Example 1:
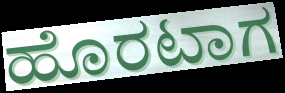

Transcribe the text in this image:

ಹೊರಟಾಗ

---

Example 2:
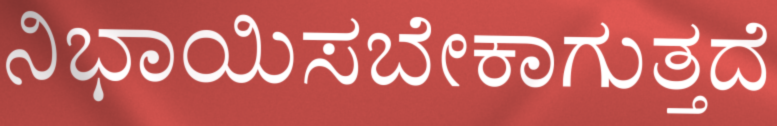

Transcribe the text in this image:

ನಿಭಾಯಿಸಬೇಕಾಗುತ್ತದೆ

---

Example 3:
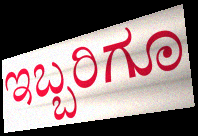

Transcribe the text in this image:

ಇಬ್ಬರಿಗೂ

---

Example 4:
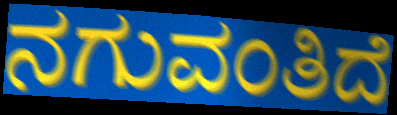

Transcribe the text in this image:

ನಗುವಂತಿದೆ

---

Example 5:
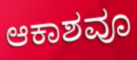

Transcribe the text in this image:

ಆಕಾಶವೂ